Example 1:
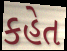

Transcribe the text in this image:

કહેત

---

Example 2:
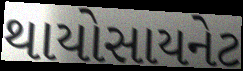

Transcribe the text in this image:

થાયોસાયનેટ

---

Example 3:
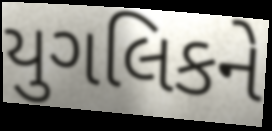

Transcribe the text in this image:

યુગલિકને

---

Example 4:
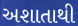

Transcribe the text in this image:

અશાતાથી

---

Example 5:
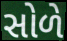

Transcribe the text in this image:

સોળે